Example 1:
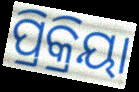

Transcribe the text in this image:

ପ୍ରିକ୍ରିୟା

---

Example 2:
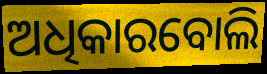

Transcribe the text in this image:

ଅଧିକାରବୋଲି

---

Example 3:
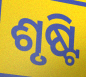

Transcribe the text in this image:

ଶୃଷ୍ଟି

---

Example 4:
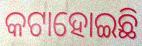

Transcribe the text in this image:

କଟାହୋଇଛି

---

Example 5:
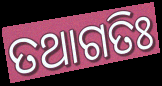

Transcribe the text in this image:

ତଥାଗତିଃ